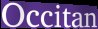
Occitan